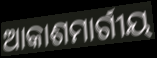
ଆକାଶମାର୍ଗୀୟ